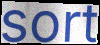
sort